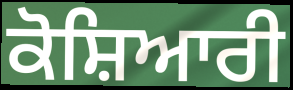
ਕੋਸ਼ਿਆਰੀ